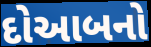
દોઆબનો